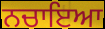
ਨਚਾਇਆ